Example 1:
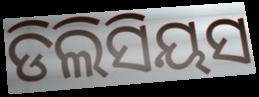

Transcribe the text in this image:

ଡିଲିସିୟସ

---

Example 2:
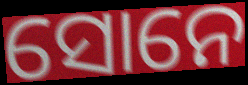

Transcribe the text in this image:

ସୋନେ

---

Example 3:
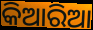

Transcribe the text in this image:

କିଆରିଆ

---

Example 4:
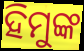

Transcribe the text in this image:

ହିମୁଙ୍କ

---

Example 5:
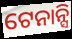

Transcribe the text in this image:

ଟେନାନ୍ସି